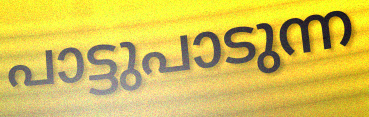
പാട്ടുപാടുന്ന